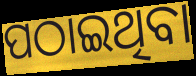
ପଠାଇଥିବା